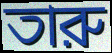
তাৰু